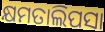
କ୍ଷମତାଲିପସା